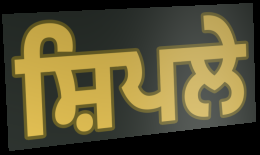
ਸ਼ਿਪਲੇ